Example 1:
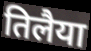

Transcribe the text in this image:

तिलैया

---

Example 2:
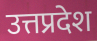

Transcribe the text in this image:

उत्तप्रदेश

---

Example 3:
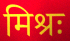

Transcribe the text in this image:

मिश्रः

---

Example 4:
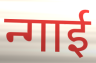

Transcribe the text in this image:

न्गाई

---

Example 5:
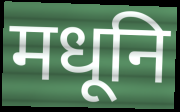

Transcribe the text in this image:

मधूनि